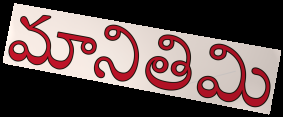
మానితిమి